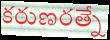
కరుణరత్నే